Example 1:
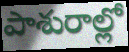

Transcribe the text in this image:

పాశురాల్లో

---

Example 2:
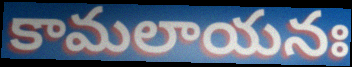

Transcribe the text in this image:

కామలాయనః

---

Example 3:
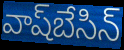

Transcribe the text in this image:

వాష్‌బేసిన్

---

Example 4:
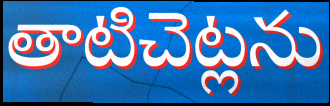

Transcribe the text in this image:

తాటిచెట్లను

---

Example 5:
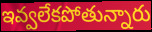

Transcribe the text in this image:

ఇవ్వలేకపోతున్నారు